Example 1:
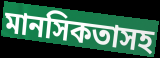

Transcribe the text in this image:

মানসিকতাসহ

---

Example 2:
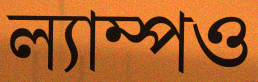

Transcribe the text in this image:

ল্যাম্পও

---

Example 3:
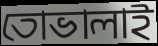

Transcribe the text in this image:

তোভালাই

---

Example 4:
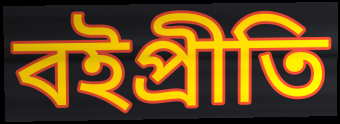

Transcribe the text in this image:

বইপ্রীতি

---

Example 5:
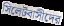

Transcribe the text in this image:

সিলেটবাসীদের